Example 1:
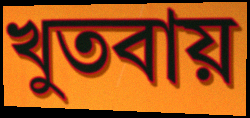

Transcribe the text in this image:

খুতবায়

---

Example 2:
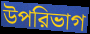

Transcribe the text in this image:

উপরিভাগ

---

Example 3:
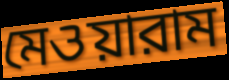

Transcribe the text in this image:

মেওয়ারাম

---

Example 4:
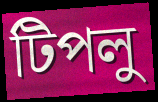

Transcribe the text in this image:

টিপলু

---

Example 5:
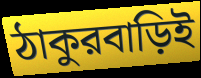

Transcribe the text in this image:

ঠাকুরবাড়িই